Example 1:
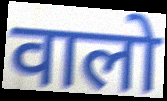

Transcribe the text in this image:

वालो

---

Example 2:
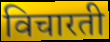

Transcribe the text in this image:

विचारती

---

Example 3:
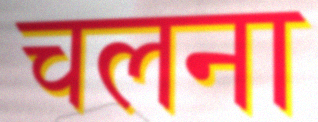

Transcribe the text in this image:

चलना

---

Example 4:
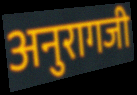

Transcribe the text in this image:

अनुरागजी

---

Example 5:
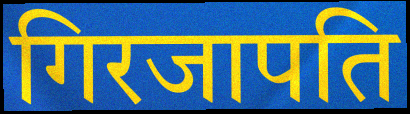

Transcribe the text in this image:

गिरजापति